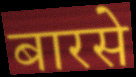
बारसे